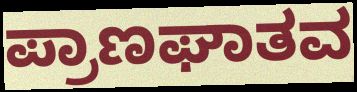
ಪ್ರಾಣಘಾತವ